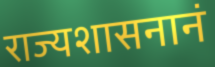
राज्यशासनानं